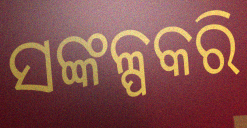
ସଙ୍କଳ୍ପକରି